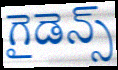
గైడెన్స్